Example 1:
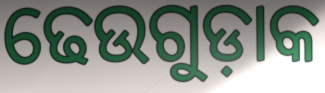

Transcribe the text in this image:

ଢେଉଗୁଡ଼ାକ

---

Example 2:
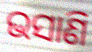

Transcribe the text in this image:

ଭସାଣି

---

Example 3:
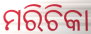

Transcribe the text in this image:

ମରିଚିକା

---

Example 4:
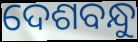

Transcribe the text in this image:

ଦେଶବନ୍ଧୁ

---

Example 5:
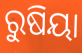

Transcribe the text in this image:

ରୁଷିୟା